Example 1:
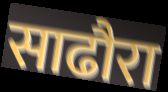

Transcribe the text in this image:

साढौरा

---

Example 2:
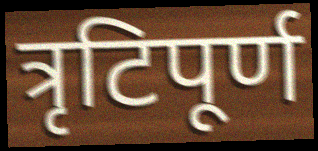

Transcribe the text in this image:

त्रृटिपूर्ण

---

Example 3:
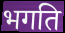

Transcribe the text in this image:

भगति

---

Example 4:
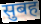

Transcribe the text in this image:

सुबह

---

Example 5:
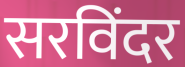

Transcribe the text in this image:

सरविंदर